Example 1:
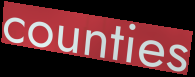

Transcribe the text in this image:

counties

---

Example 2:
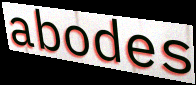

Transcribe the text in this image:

abodes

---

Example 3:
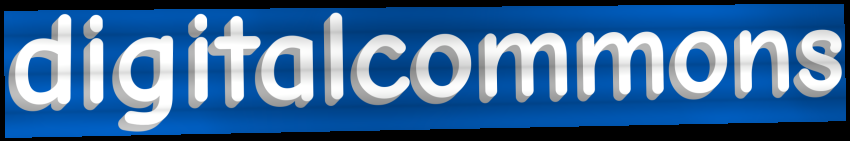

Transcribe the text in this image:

digitalcommons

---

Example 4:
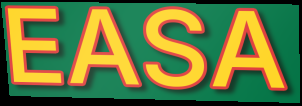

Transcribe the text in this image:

EASA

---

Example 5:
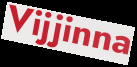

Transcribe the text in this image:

Vijjinna